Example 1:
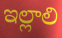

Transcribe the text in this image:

ఇల్లాలి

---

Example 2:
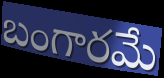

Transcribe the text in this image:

బంగారమే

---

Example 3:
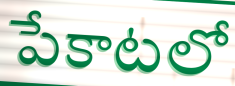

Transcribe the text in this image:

పేకాటలో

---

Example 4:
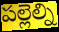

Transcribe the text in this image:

పల్లెల్ని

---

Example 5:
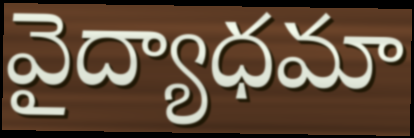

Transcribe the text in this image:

వైద్యాధమా